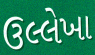
ઉલ્લેખા